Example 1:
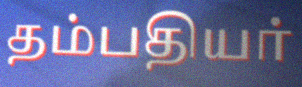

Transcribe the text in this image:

தம்பதியர்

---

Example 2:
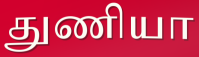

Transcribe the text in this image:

துணியா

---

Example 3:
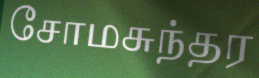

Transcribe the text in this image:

சோமசுந்தர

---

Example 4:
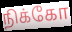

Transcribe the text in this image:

நிக்கோ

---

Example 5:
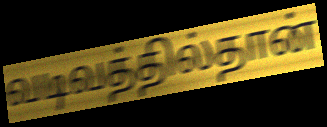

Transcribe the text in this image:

வடிவத்தில்தான்